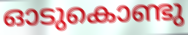
ഓടുകൊണ്ടു